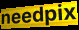
needpix